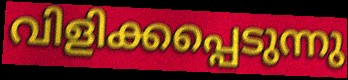
വിളിക്കപ്പെടുന്നു